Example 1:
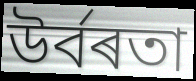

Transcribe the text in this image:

উৰ্বৰতা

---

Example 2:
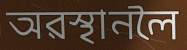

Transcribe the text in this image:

অৱস্থানলৈ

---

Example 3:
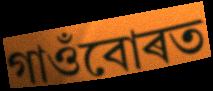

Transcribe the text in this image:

গাওঁবোৰত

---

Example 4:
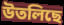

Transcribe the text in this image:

উতলিছে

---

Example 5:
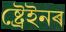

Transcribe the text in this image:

ষ্ট্ৰেইনৰ